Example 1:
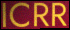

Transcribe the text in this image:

ICRR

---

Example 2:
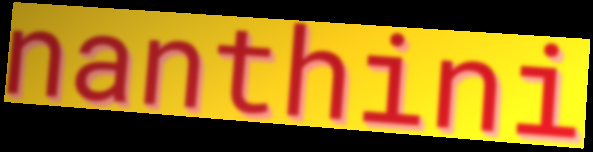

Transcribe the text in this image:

nanthini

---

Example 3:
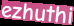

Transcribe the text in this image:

ezhuthi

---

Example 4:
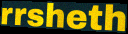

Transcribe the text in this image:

rrsheth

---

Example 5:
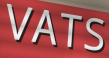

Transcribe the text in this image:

VATS